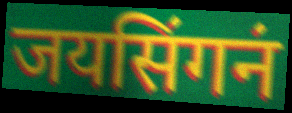
जयसिंगनं